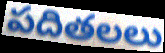
పదితలలు